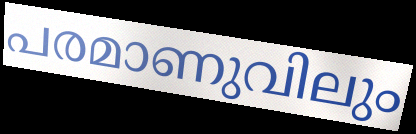
പരമാണുവിലും